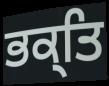
ਭਕ੍ਤਿ